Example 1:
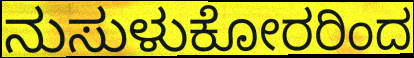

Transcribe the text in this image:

ನುಸುಳುಕೋರರಿಂದ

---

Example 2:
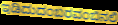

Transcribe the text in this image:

ಇಡಿದುದಂಬರವಂಬಿನಲಿ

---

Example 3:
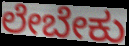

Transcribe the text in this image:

ಲೇಬೇಕು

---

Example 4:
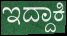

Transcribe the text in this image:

ಇದ್ದಾಕಿ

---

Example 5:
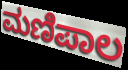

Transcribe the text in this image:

ಮಣಿಪಾಲ